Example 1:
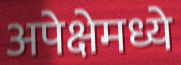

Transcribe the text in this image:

अपेक्षेमध्ये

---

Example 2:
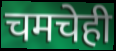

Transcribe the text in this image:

चमचेही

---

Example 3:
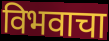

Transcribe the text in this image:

विभवाचा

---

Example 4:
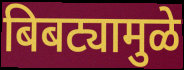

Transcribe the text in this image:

बिबट्यामुळे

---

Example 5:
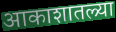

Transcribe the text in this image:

आकाशातल्या